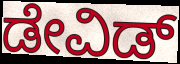
ಡೇವಿಡ್